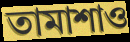
তামাশাও